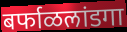
बर्फाळलांडगा